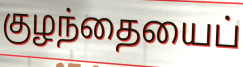
குழந்தையைப்